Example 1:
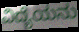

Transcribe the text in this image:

ವಿದ್ಯೆಯನು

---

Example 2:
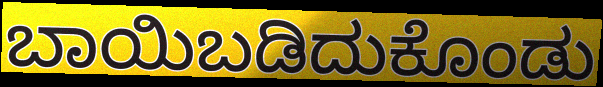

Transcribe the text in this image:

ಬಾಯಿಬಡಿದುಕೊಂಡು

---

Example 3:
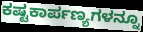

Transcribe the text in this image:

ಕಷ್ಟಕಾರ್ಪಣ್ಯಗಳನ್ನೂ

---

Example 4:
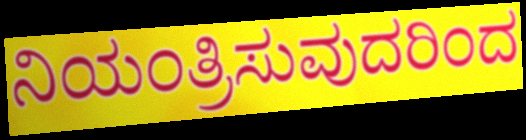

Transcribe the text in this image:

ನಿಯಂತ್ರಿಸುವುದರಿಂದ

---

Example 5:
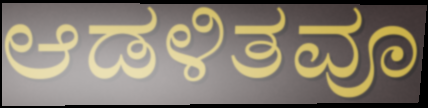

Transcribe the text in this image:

ಆಡಳಿತವೂ